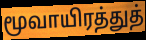
மூவாயிரத்துத்